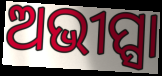
ଅଭୀପ୍ସା